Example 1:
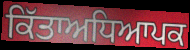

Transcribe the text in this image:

ਕਿੱਤਾਅਧਿਆਪਕ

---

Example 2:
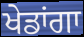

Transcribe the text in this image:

ਖੇਡਾਂਗਾ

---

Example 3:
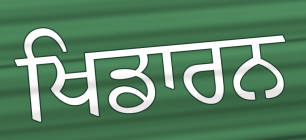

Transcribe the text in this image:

ਖਿਡਾਰਨ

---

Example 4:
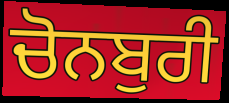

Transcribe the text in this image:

ਚੋਨਬੁਰੀ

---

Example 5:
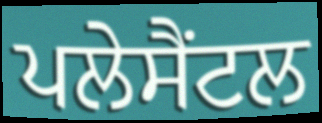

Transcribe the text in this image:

ਪਲੇਸੈਂਟਲ